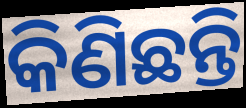
କିଣିଛନ୍ତି